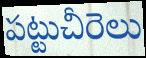
పట్టుచీరెలు